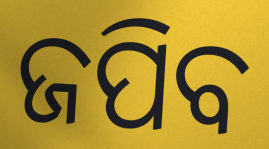
ଜପିବ